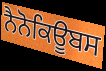
ਨੈਨੋਕਿਊਬਸ